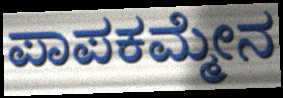
ಪಾಪಕಮ್ಮೇನ